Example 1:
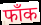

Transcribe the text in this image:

फाँक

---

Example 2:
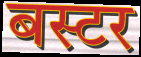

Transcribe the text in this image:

बस्टर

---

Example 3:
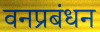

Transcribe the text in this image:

वनप्रबंधन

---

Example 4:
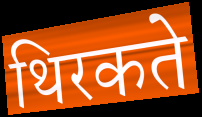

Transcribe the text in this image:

थिरकते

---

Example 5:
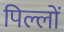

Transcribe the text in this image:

पिल्लों